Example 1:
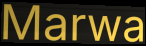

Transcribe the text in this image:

Marwa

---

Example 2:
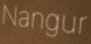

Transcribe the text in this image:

Nangur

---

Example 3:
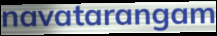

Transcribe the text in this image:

navatarangam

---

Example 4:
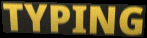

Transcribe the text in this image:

TYPING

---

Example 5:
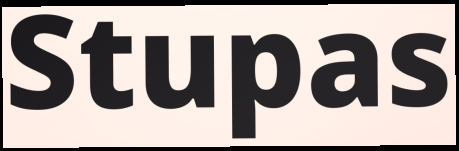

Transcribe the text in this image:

Stupas